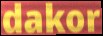
dakor